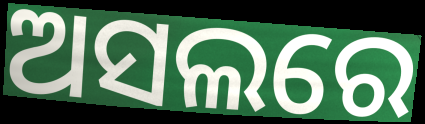
ଅସଲରେ